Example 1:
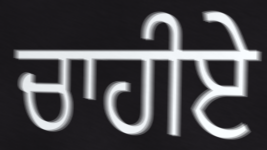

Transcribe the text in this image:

ਚਾਹੀਏ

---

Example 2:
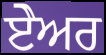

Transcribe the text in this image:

ਏੇਅਰ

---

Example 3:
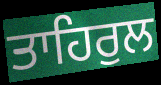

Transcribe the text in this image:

ਤਾਹਿਰੁਲ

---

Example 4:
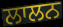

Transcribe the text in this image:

ਲਾਲਨ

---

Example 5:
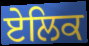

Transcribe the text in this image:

ਏਲਿਕ